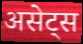
असेट्स